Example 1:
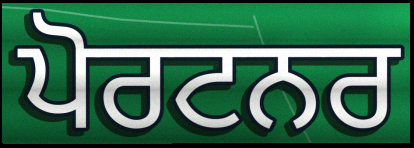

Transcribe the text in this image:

ਪੋਰਟਨਰ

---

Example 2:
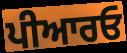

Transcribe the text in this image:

ਪੀਆਰਓ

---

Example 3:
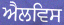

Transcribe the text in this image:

ਐਲਵਿਸ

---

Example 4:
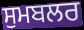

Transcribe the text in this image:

ਸੁਮਬਲਰ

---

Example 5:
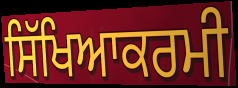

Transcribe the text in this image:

ਸਿੱਖਿਆਕਰਮੀ